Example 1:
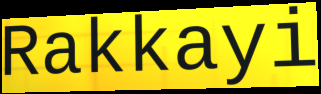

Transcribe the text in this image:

Rakkayi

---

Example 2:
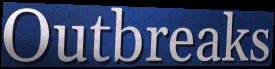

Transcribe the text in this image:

Outbreaks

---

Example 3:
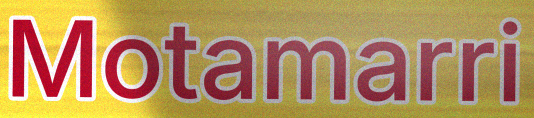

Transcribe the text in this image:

Motamarri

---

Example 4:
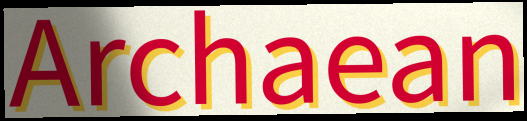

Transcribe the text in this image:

Archaean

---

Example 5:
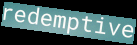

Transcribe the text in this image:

redemptive